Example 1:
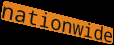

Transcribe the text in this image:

nationwide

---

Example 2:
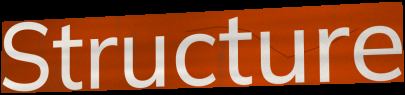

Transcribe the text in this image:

Structure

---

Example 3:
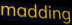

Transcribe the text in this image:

madding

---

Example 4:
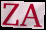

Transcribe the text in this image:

ZA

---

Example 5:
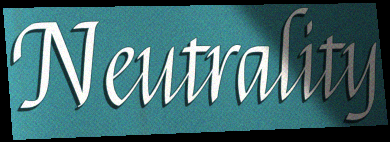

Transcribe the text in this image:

Neutrality